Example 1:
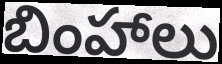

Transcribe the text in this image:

బింహాలు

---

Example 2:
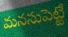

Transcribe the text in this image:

మనసుపెట్టే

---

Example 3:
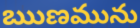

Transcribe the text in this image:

ఋణమును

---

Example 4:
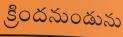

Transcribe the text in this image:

క్రిందనుండును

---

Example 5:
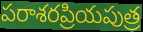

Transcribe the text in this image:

పరాశరప్రియపుత్ర